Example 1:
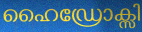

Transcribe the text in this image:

ഹൈഡ്രോക്സി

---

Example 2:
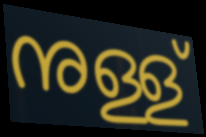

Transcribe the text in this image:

നുള്ള്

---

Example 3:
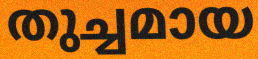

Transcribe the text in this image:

തുച്ചമായ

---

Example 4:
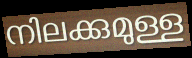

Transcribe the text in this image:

നിലക്കുമുള്ള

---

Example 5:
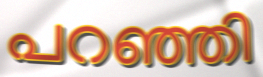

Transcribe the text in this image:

പറഞ്ഞി